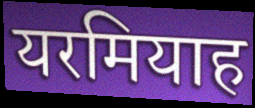
यरमियाह